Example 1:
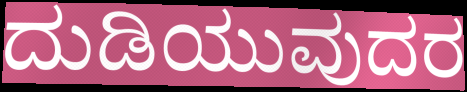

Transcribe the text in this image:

ದುಡಿಯುವುದರ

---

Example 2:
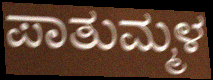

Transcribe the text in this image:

ಪಾತುಮ್ಮಳ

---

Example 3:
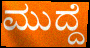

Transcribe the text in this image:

ಮುದ್ದೆ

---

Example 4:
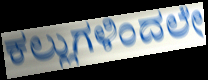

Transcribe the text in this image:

ಕಲ್ಲುಗಳಿಂದಲೇ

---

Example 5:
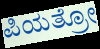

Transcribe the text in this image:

ಪಿಯತ್ರೋ